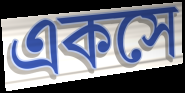
একসে